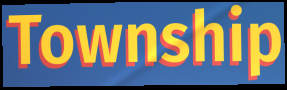
Township